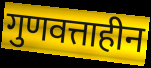
गुणवत्ताहीन